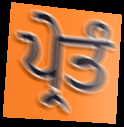
ਪ੍ਰੇਤੰ